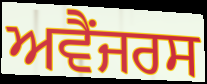
ਅਵੈਂਜਰਸ